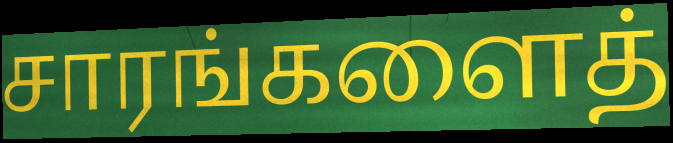
சாரங்களைத்